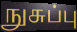
நுசுப்பு